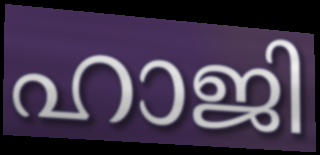
ഹാജി